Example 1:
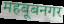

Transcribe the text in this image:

महबूबनगर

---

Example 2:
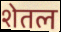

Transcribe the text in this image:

शेतल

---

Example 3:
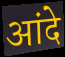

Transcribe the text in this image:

आंदे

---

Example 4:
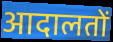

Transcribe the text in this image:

आदालतों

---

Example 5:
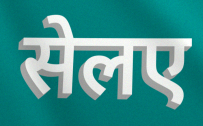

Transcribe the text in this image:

सेलए